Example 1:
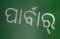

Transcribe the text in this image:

ପାର୍ବାର୍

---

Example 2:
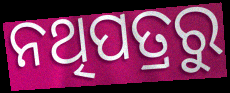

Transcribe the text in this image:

ନଥିପତ୍ରରୁ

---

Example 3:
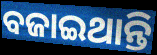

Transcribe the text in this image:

ବଜାଇଥାନ୍ତି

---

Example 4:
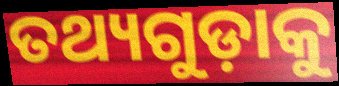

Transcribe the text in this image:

ତଥ୍ୟଗୁଡ଼ାକୁ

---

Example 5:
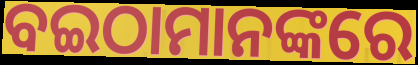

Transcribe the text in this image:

ବଇଠାମାନଙ୍କରେ